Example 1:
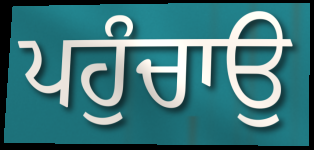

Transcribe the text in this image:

ਪਹੁੰਚਾਉ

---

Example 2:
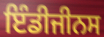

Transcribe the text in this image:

ਇੰਡੀਜੀਨਸ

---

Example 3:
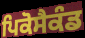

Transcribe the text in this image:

ਪਿਕੋਸੈਕੰਡ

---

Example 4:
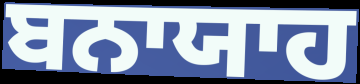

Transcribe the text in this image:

ਬਨਾਯਾਹ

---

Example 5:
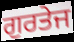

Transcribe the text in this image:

ਗੁਰਤੇਜ